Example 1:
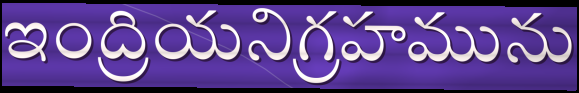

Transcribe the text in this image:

ఇంద్రియనిగ్రహమును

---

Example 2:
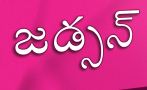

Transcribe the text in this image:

జడ్సన్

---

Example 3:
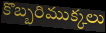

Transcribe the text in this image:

కొబ్బరిముక్కలు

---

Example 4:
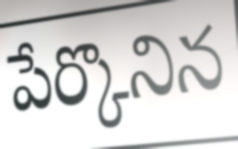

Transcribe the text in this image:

పేర్కొనిన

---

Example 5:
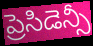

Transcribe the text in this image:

ప్రెసిడెన్సీ